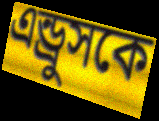
এন্ড্রুসকে